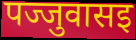
पज्जुवासइ